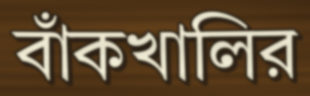
বাঁকখালির